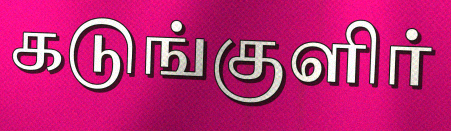
கடுங்குளிர்